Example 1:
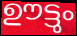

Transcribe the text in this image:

ഊട്ടും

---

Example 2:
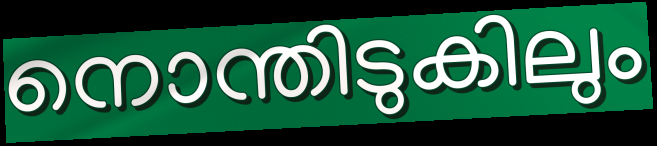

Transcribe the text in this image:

നൊന്തിടുകിലും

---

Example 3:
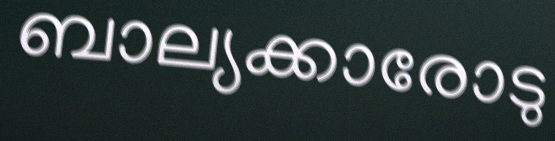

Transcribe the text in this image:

ബാല്യക്കാരോടു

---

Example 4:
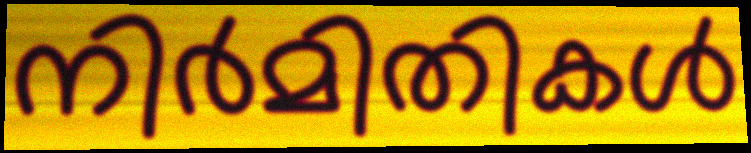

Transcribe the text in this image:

നിർമിതികൾ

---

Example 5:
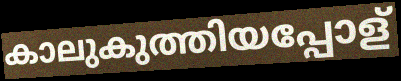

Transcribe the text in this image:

കാലുകുത്തിയപ്പോള്